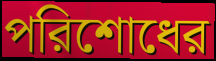
পরিশোধের